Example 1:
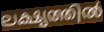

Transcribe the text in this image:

ലക്ഷ്യത്തിൽ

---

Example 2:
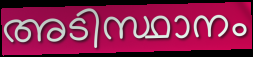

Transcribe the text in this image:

അടിസ്ഥാനം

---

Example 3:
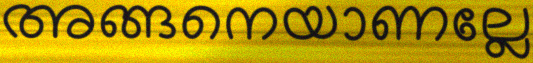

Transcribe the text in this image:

അങ്ങനെയാണല്ലേ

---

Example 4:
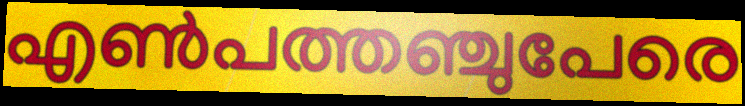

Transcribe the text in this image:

എൺപത്തഞ്ചുപേരെ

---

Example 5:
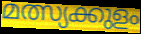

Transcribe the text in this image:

മത്സ്യക്കുളം